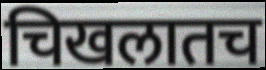
चिखलातच